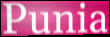
Punia